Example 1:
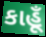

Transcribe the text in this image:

કાહૂઁ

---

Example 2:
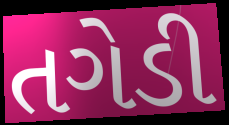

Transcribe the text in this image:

તગેડી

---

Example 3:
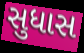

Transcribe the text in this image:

સુધાસ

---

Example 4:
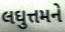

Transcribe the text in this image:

લઘુત્તમને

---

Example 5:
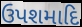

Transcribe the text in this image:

ઉપશમાદિ